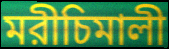
মরীচিমালী